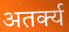
अतर्क्य